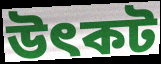
উৎকট